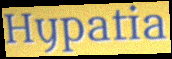
Hypatia